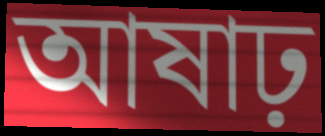
আষাঢ়